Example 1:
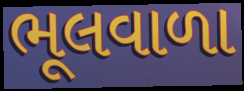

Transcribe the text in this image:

ભૂલવાળા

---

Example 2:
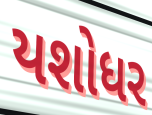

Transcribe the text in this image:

યશોધર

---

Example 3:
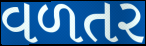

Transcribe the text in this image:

વળતર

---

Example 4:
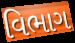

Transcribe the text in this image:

વિભાગ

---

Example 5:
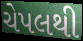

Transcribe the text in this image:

ચેપલથી